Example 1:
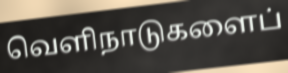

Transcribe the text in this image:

வெளிநாடுகளைப்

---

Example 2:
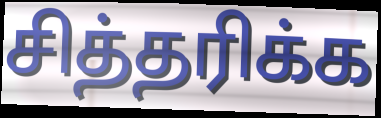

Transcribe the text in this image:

சித்தரிக்க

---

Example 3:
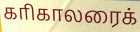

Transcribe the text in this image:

கரிகாலரைக்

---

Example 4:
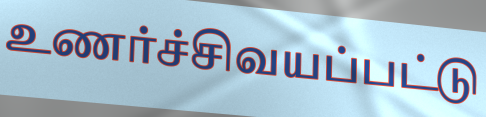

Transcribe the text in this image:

உணர்ச்சிவயப்பட்டு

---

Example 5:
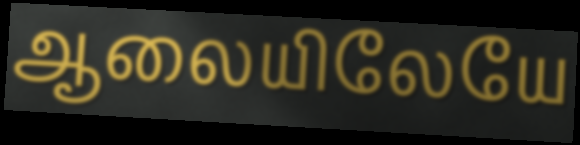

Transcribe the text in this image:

ஆலையிலேயே